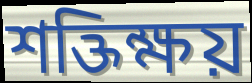
শক্তিক্ষয়